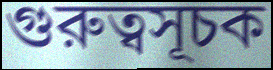
গুরুত্বসূচক